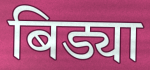
बिड्या